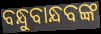
ବନ୍ଧୁବାନ୍ଧବଙ୍କ